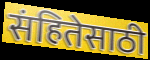
संहितेसाठी